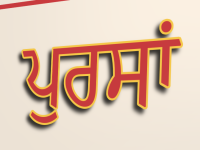
ਪੁਰਸਾਂ